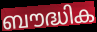
ബൗദ്ധിക